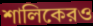
শালিকেরও